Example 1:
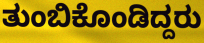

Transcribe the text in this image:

ತುಂಬಿಕೊಂಡಿದ್ದರು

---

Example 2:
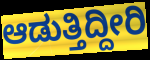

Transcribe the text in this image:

ಆಡುತ್ತಿದ್ದೀರಿ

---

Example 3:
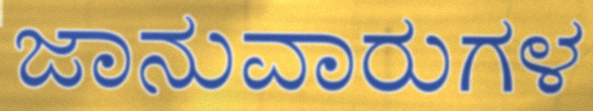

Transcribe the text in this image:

ಜಾನುವಾರುಗಳ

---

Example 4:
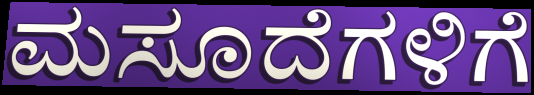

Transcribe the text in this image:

ಮಸೂದೆಗಳಿಗೆ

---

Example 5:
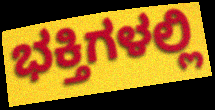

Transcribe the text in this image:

ಭಕ್ತಿಗಳಲ್ಲಿ